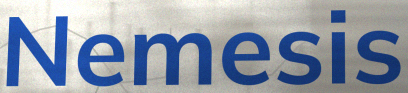
Nemesis